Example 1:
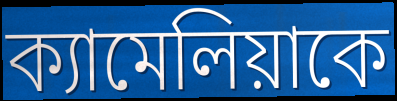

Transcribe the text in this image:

ক্যামেলিয়াকে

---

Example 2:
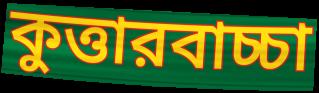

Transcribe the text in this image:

কুত্তারবাচ্চা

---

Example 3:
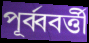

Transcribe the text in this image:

পূর্ব্ববর্ত্তী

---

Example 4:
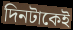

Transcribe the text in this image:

দিনটাকেই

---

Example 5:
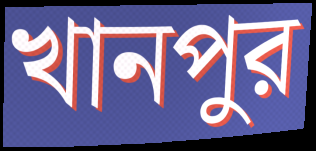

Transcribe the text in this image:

খানপুর